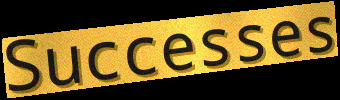
Successes